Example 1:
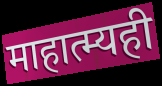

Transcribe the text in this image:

माहात्म्यही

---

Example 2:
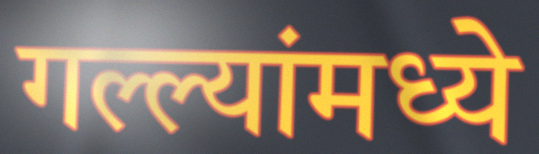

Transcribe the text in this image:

गल्ल्यांमध्ये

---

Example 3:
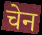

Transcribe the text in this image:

चेन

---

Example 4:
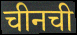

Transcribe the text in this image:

चीनची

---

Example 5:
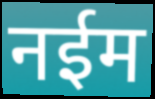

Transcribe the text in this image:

नईम